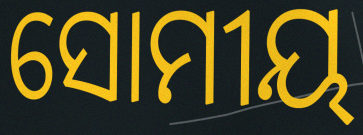
ସୋମୀୟ